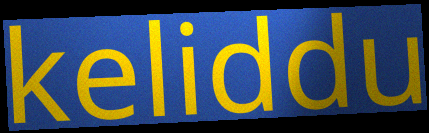
keliddu